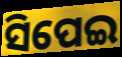
ସିପେଇ